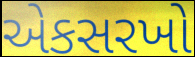
એકસરખો